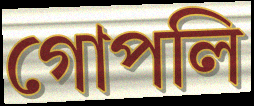
গোপলি